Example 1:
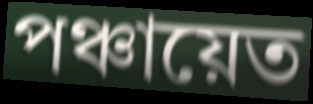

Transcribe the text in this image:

পঞ্চায়েত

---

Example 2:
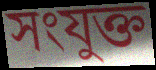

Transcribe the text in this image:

সংযুক্ত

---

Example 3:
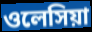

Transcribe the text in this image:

ওলেসিয়া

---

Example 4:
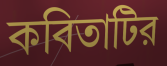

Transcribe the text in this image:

কবিতাটির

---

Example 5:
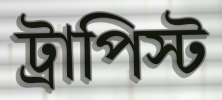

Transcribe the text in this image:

ট্রাপিস্ট